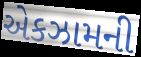
એકઝામની